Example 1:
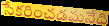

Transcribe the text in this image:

సేకరించడమనేది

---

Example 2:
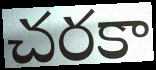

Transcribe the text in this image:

చరకా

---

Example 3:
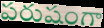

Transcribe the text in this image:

పరుషంగా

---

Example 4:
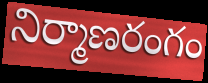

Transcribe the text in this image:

నిర్మాణరంగం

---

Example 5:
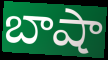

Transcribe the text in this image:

బాషా